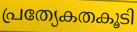
പ്രത്യേകതകൂടി